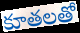
కూతలతో